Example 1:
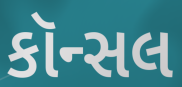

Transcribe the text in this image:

કૉન્સલ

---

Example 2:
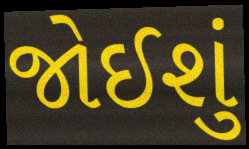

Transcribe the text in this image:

જોઈશું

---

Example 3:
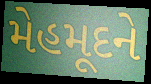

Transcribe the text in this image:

મેહમૂદને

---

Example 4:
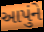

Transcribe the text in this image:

આપુંને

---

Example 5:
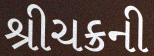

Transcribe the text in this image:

શ્રીચક્રની